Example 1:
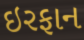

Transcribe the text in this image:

ઇરફાન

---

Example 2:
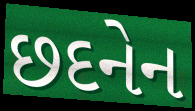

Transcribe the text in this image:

છદનેન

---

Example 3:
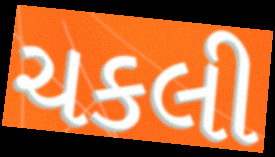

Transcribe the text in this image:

ચકલી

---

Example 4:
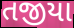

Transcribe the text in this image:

તજીયા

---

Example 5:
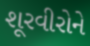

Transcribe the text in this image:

શૂરવીરોને